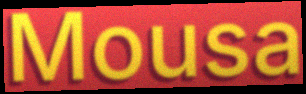
Mousa